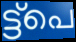
ട്ട്പെ